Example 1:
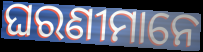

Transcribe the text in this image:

ଘରଣୀମାନେ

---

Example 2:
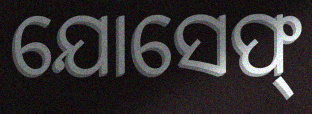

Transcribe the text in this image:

ଯୋସେଫ୍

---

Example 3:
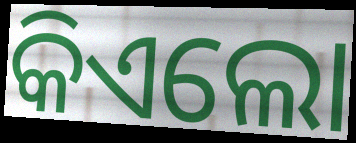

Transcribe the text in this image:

କିଏଲୋ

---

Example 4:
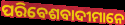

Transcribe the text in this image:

ପରିବେଶବାଦୀମାନେ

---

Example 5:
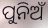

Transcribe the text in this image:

ପୁନିଅଁ